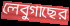
লেবুগাছের